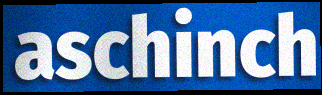
aschinch